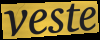
veste